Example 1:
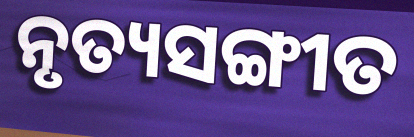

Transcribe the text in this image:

ନୃତ୍ୟସଙ୍ଗୀତ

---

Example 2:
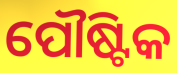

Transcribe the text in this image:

ପୌଷ୍ଟିକ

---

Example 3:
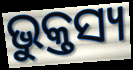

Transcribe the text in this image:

ଭୁକ୍ତସ୍ୟ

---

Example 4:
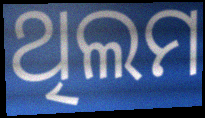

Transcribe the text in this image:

ଥିଲମ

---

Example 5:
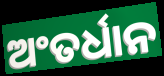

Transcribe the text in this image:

ଅଂତର୍ଧାନ